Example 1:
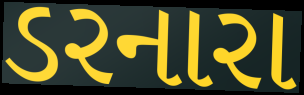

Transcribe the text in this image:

ડરનારા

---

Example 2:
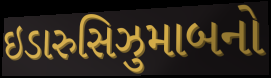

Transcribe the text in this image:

ઇડારુસિઝુમાબનો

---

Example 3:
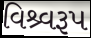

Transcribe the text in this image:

વિશ્ર્વરૂપ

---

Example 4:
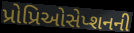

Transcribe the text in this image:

પ્રોપ્રિઓસેપ્શનની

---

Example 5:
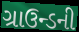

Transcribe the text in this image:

ગ્રાઉન્ડની